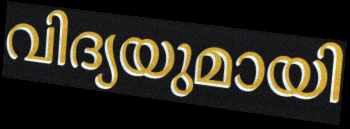
വിദ്യയുമായി